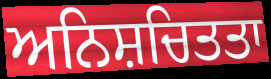
ਅਨਿਸ਼ਚਿਤਤਾ